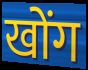
खोंग